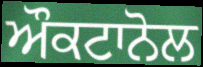
ਔਕਟਾਨੋਲ